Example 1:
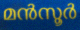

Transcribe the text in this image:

മൻസൂർ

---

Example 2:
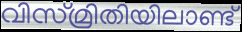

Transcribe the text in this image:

വിസ്മ്രിതിയിലാണ്ട്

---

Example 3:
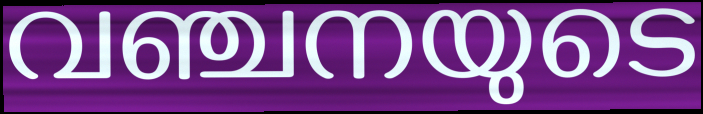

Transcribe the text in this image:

വഞ്ചനയുടെ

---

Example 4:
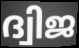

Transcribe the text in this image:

ദ്വിജ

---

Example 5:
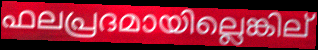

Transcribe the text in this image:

ഫലപ്രദമായില്ലെങ്കില്